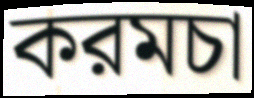
করমচা